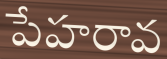
పేహరావ